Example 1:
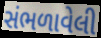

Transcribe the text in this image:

સંભળાવેલી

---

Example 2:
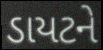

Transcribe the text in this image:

ડાયટને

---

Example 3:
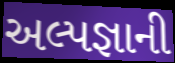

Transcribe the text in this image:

અલ્પજ્ઞાની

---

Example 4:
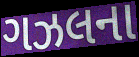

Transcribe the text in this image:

ગઝલના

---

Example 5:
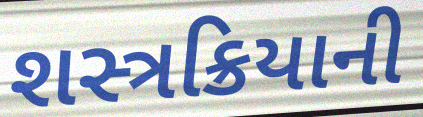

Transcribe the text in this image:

શસ્ત્રક્રિયાની